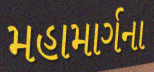
મહામાર્ગના